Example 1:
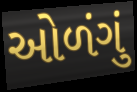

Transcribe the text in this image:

ઓળંગું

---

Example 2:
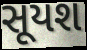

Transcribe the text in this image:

સૂયશ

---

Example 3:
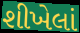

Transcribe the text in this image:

શીખેલાં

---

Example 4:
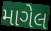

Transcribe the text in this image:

માગેલ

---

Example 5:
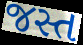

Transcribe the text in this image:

જસ્ત